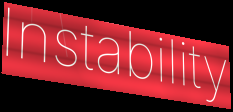
Instability